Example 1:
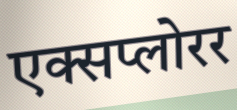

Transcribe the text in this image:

एक्सप्लोरर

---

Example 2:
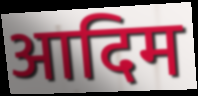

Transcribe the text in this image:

आदिम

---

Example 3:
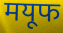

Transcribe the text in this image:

मयूफ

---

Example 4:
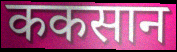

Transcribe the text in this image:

ककसान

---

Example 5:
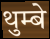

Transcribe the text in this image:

थुम्बे